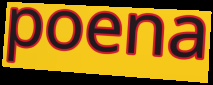
poena